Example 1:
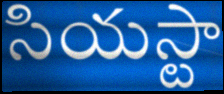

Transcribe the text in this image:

సియస్టా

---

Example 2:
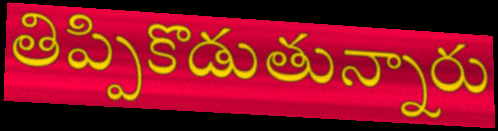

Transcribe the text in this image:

తిప్పికొడుతున్నారు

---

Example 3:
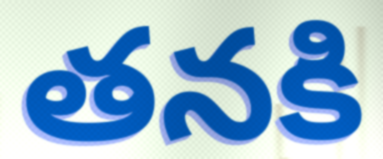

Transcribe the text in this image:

తనకి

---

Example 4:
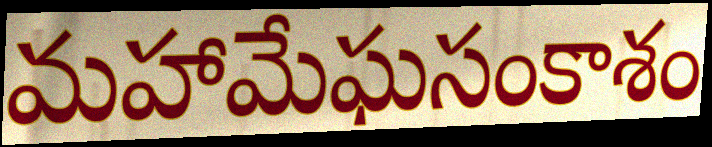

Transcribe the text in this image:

మహామేఘసంకాశం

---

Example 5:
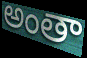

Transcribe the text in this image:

అంతా